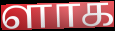
ளாக